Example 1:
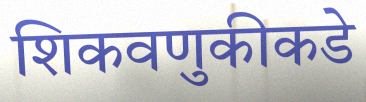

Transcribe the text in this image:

शिकवणुकीकडे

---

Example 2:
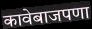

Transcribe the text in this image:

कावेबाजपणा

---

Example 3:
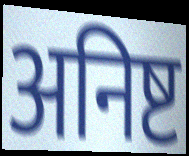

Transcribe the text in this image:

अनिष्ट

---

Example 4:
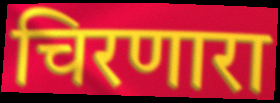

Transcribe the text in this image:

चिरणारा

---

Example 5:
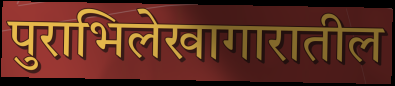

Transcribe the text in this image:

पुराभिलेखागारातील